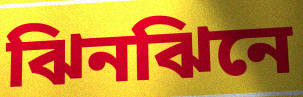
ঝিনঝিনে